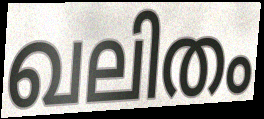
ഖലിതം